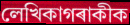
লেখিকাগৰাকীক